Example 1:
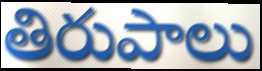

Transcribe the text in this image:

తిరుపాలు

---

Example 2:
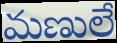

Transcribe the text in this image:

మణులే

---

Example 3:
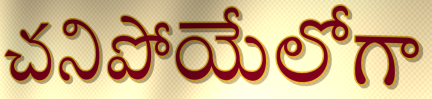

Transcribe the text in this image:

చనిపోయేలోగా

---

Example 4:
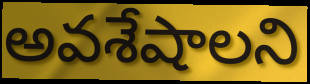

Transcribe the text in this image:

అవశేషాలని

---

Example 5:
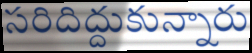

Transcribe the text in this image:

సరిదిద్దుకున్నారు